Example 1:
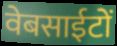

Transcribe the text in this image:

वेबसाईटों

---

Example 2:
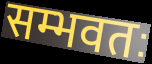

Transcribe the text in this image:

सम्भवतः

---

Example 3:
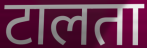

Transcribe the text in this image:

टालता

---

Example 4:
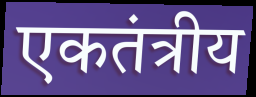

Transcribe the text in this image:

एकतंत्रीय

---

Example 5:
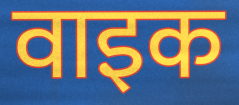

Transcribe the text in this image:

वाइक